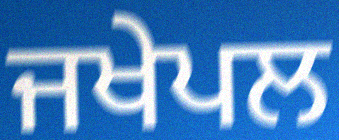
ਜਖੇਪਲ